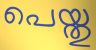
പെയ്തു